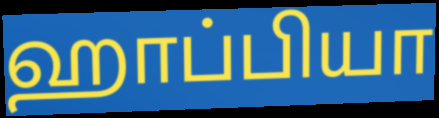
ஹாப்பியா